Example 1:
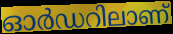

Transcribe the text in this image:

ഓർഡറിലാണ്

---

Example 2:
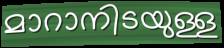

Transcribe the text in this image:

മാറാനിടയുള്ള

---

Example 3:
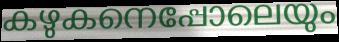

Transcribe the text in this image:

കഴുകനെപ്പോലെയും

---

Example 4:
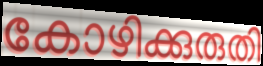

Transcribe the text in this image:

കോഴിക്കുരുതി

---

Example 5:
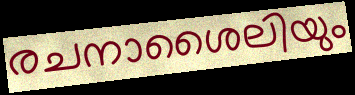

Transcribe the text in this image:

രചനാശൈലിയും